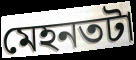
মেহনতটা